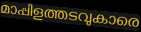
മാപ്പിളത്തടവുകാരെ